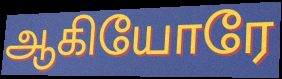
ஆகியோரே